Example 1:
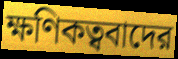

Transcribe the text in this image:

ক্ষণিকত্ববাদের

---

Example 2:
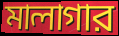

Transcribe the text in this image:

মালাগার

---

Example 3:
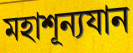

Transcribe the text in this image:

মহাশূন্যযান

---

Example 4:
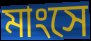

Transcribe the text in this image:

মাংসে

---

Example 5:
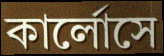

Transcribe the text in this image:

কার্লোসে